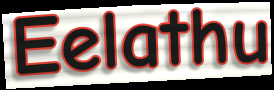
Eelathu